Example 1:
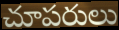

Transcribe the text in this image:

చూపరులు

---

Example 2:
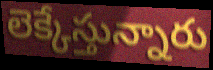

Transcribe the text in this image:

లెక్కేస్తున్నారు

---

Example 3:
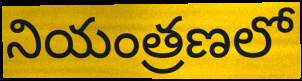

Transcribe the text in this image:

నియంత్రణలో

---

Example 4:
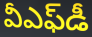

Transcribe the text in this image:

వీఎఫ్‌డీ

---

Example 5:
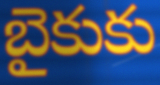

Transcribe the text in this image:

బైకుకు